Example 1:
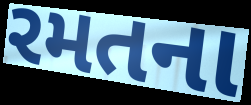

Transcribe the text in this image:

રમતના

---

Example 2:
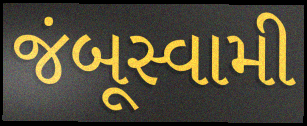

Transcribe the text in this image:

જંબૂસ્વામી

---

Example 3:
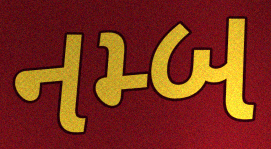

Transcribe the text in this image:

નમ્બ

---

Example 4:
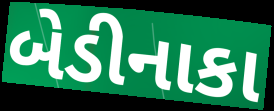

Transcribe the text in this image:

બેડીનાકા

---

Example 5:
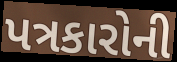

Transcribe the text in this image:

પત્રકારોની